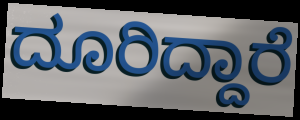
ದೂರಿದ್ದಾರೆ